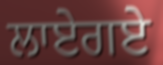
ਲਾਏਗਏ